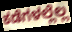
ಕಡೆಗಳಲ್ಲೆಲ್ಲ